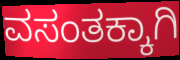
ವಸಂತಕ್ಕಾಗಿ